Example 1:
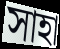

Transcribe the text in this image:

সাহা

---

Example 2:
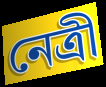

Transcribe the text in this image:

নেত্ৰী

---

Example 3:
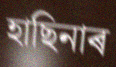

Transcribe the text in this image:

হাছিনাৰ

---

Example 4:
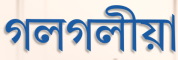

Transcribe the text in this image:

গলগলীয়া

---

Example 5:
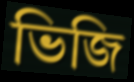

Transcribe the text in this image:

ভিজি